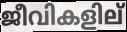
ജീവികളില്